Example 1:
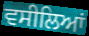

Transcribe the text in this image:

ਵਸੀਲਿਆਂ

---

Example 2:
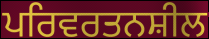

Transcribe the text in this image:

ਪਰਿਵਰਤਨਸ਼ੀਲ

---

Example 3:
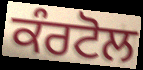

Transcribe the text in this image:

ਕੰਰਟੋਲ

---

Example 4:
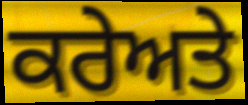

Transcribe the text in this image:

ਕਰੇਅਤੇ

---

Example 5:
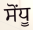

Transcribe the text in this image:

ਸੋਂਧੂ